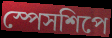
স্পেসশিপে